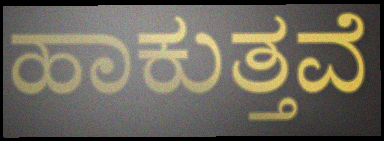
ಹಾಕುತ್ತವೆ